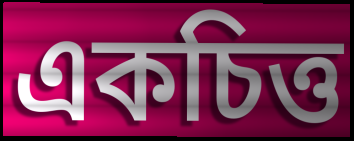
একচিত্ত